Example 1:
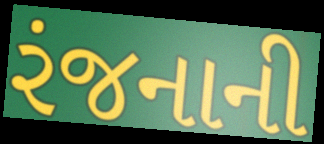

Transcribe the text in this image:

રંજનાની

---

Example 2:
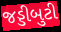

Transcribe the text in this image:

જડ્ડીબુટી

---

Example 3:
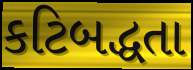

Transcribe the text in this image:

કટિબદ્ધતા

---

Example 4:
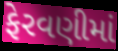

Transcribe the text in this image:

ફેરવણીમાં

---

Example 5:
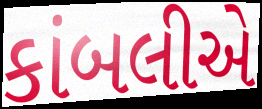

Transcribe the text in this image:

કાંબલીએ